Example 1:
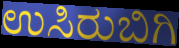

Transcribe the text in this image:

ಉಸಿರುಬಿಗಿ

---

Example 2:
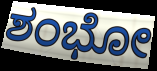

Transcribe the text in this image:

ಶಂಭೋ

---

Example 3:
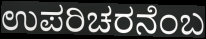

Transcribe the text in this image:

ಉಪರಿಚರನೆಂಬ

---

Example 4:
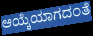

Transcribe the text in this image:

ಆಯ್ಕೆಯಾಗದಂತೆ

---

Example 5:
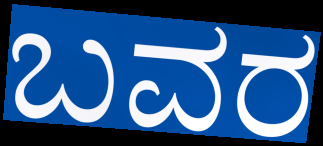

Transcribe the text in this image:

ಬವರ